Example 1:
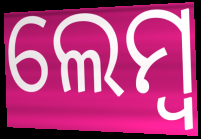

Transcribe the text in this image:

ଲେମ୍ବ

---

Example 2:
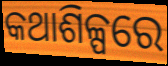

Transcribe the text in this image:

କଥାଶିଳ୍ପରେ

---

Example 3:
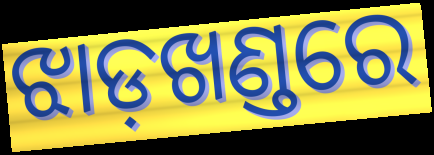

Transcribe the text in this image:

ଝାଡ଼ଖଣ୍ଡରେ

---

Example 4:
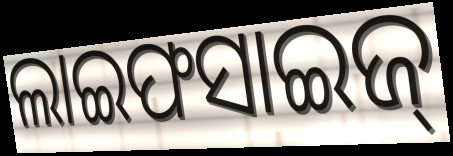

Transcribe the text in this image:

ଲାଇଫସାଇଜ୍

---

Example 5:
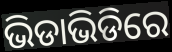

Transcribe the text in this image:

ଭିଡାଭିଡିରେ